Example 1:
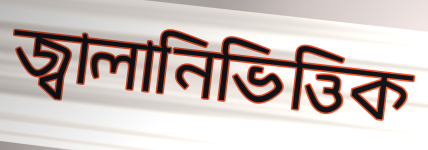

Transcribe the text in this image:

জ্বালানিভিত্তিক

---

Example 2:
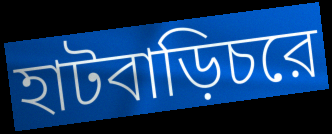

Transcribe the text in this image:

হাটবাড়িচরে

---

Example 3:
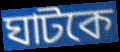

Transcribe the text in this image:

ঘাটকে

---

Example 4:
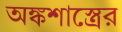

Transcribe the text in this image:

অঙ্কশাস্ত্রের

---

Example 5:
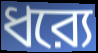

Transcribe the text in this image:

ধর‍্যে